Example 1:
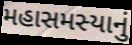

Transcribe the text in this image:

મહાસમસ્યાનું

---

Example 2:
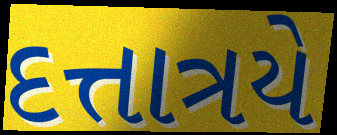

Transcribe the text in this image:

દત્તાત્રયે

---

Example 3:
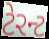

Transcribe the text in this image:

ટેરન્ટ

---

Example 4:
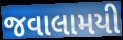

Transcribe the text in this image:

જવાલામયી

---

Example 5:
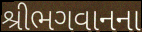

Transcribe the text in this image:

શ્રીભગવાનના